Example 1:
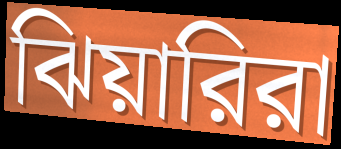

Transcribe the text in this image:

ঝিয়ারিরা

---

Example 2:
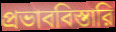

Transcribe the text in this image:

প্রভাববিস্তারি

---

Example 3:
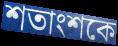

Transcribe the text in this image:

শতাংশকে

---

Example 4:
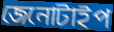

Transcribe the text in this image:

জেনোটাইপ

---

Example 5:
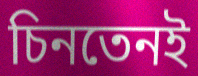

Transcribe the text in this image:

চিনতেনই